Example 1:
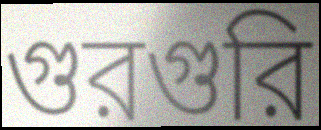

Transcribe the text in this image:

গুরগুরি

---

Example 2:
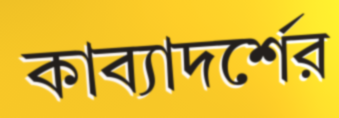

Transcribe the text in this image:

কাব্যাদর্শের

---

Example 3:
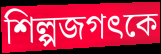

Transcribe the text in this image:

শিল্পজগৎকে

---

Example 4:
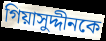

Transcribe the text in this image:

গিয়াসুদ্দীনকে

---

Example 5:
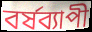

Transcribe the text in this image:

বর্ষব্যাপী